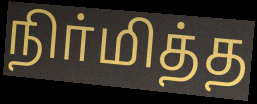
நிர்மித்த